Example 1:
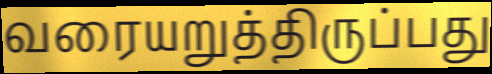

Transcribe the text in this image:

வரையறுத்திருப்பது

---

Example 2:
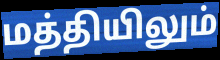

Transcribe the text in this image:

மத்தியிலும்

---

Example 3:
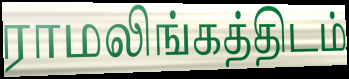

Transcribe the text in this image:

ராமலிங்கத்திடம்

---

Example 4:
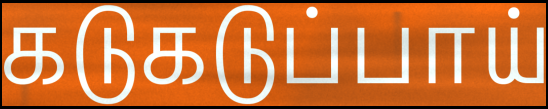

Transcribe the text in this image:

கடுகடுப்பாய்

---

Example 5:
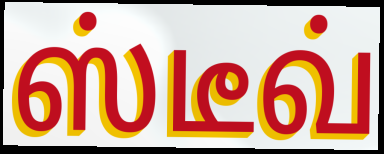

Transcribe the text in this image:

ஸ்டீவ்